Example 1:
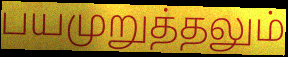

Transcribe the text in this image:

பயமுறுத்தலும்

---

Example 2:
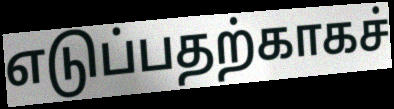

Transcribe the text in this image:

எடுப்பதற்காகச்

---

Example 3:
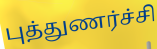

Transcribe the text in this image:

புத்துணர்ச்சி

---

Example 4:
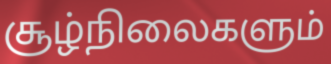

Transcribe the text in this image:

சூழ்நிலைகளும்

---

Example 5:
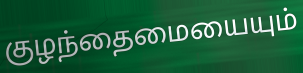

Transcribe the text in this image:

குழந்தைமையையும்